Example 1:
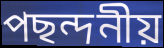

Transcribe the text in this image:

পছন্দনীয়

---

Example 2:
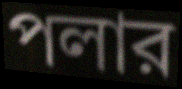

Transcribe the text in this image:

পলার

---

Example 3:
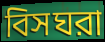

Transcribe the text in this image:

বিসঘরা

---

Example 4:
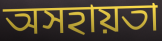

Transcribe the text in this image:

অসহায়তা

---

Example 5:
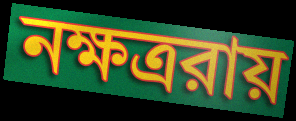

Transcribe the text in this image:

নক্ষত্ররায়